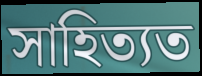
সাহিত্যত